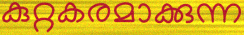
കുറ്റകരമാക്കുന്ന